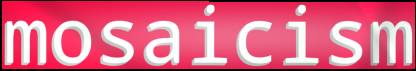
mosaicism